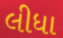
લીધા